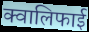
क्वालिफाई